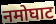
नमोघाट